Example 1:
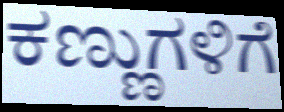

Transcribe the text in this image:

ಕಣ್ಣುಗಳಿಗೆ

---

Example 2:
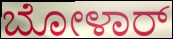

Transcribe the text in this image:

ಬೋಳಾರ್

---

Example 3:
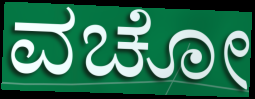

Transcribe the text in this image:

ವಚೋ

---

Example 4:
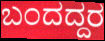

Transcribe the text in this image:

ಬಂದದ್ದರ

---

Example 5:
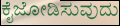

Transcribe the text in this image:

ಕೈಜೋಡಿಸುವುದು